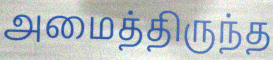
அமைத்திருந்த